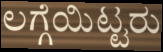
ಲಗ್ಗೆಯಿಟ್ಟರು